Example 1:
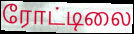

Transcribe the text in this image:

ரோட்டிலை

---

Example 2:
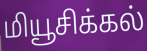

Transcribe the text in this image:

மியூசிக்கல்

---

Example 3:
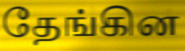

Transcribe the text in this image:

தேங்கின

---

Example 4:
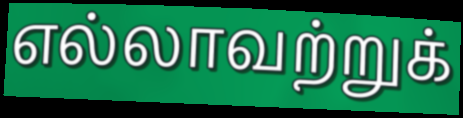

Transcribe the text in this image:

எல்லாவற்றுக்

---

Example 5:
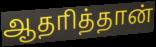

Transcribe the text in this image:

ஆதரித்தான்